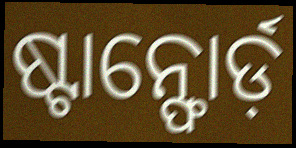
ଷ୍ଟାନ୍ଫୋର୍ଡ଼